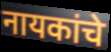
नायकांचे